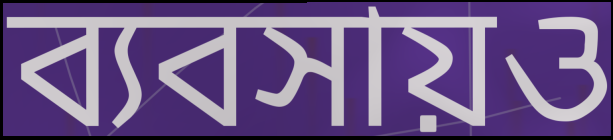
ব্যবসায়ও